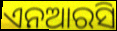
ଏନଆରସି